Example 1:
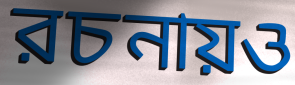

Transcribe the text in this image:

রচনায়ও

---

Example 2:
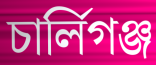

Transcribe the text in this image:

চার্লিগঞ্জ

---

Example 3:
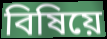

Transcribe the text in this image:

বিষিয়ে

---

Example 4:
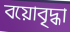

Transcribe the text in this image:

বয়োবৃদ্ধা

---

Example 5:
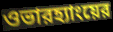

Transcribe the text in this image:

ওভারহ্যাংয়ের